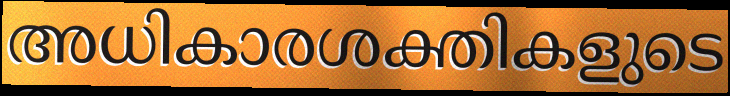
അധികാരശക്തികളുടെ